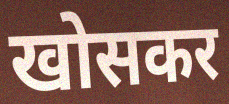
खोसकर